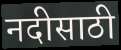
नदीसाठी